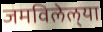
जमविलेल्या